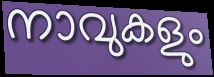
നാവുകളും